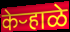
केऱ्हाळे